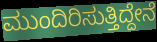
ಮುಂದಿರಿಸುತ್ತಿದ್ದೇನೆ